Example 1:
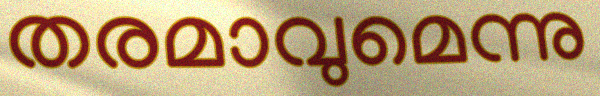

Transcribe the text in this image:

തരമാവുമെന്നു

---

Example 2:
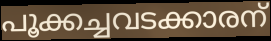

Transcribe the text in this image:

പൂക്കച്ചവടക്കാരന്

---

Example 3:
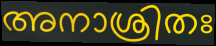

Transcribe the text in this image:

അനാശ്രിതഃ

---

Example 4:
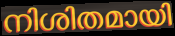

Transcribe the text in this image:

നിശിതമായി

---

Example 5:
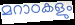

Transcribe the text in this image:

മറാഠകളും